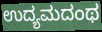
ಉದ್ಯಮದಂಥ